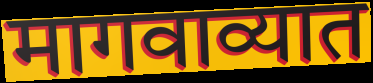
मागवाव्यात